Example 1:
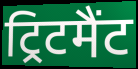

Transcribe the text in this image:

ट्रिटमैंट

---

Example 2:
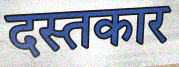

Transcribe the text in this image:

दस्‍तकार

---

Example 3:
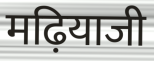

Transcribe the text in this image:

मढ़ियाजी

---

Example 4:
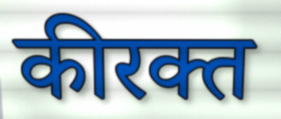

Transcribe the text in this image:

कीरक्त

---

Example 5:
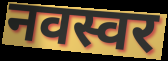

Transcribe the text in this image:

नवस्वर